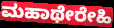
ಮಹಾಥೇರೇಹಿ